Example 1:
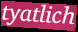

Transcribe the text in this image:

tyatlich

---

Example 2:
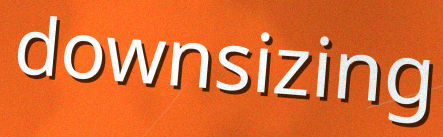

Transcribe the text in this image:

downsizing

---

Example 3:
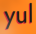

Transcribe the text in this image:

yul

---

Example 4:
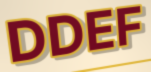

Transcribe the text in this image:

DDEF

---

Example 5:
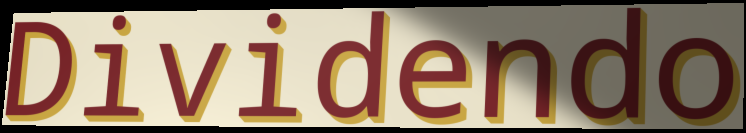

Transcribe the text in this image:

Dividendo